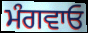
ਮੰਗਵਾਓ